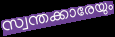
സ്വന്തക്കാരേയും